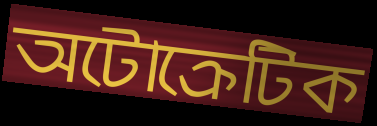
অটোক্রেটিক